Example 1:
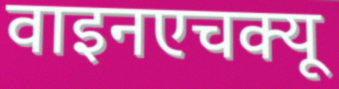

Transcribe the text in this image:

वाइनएचक्यू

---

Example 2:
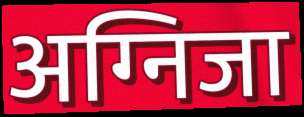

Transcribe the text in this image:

अग्निजा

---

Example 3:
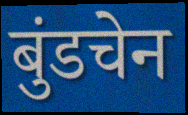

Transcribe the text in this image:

बुंडचेन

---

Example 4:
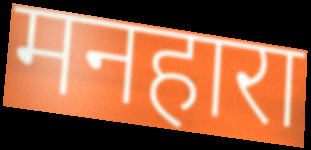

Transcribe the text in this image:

मनहारा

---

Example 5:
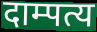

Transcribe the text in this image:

दाम्पत्य